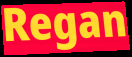
Regan